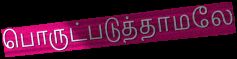
பொருட்படுத்தாமலே